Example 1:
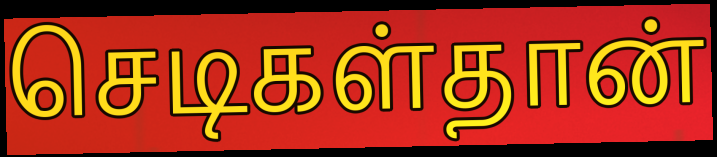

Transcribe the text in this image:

செடிகள்தான்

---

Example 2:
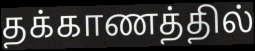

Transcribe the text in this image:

தக்காணத்தில்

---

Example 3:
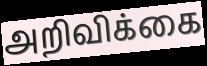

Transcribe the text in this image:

அறிவிக்கை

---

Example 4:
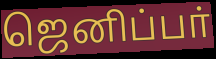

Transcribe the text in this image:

ஜெனிப்பர்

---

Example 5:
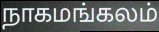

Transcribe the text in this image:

நாகமங்கலம்